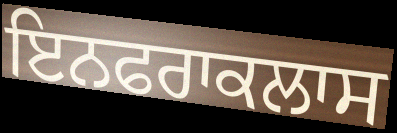
ਇਨਫਰਾਕਲਾਸ